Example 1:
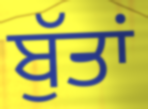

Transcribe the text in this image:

ਬੁੱਤਾਂ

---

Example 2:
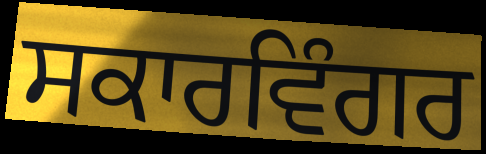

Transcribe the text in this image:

ਸਕਾਰਵਿੰਗਰ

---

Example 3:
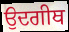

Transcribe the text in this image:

ਉਦਗੀਥ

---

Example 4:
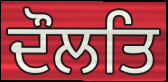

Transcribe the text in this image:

ਦੌਲਤਿ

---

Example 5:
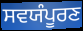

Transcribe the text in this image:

ਸਵਯੰਪੂਰਣ